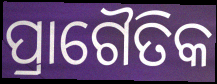
ପ୍ରାଗୈତିକ